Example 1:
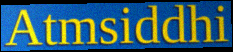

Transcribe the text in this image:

Atmsiddhi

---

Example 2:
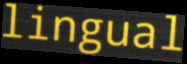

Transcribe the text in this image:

lingual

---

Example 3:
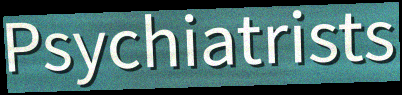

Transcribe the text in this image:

Psychiatrists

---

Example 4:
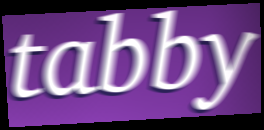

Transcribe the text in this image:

tabby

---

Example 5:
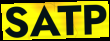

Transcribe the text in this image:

SATP